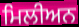
ਮਿਲੀਅਨ